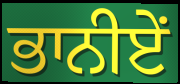
ਭਾਨੀਏਂ